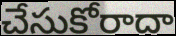
చేసుకోరాదా